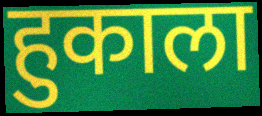
हुकाला